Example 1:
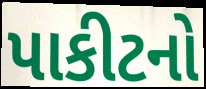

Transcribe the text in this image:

પાકીટનો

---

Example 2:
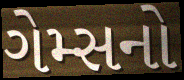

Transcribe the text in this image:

ગેમ્સનો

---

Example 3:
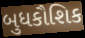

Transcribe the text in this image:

બુધકૌશિક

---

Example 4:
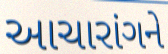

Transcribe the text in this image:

આચારાંગને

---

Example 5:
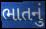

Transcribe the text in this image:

ભાતનું